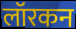
लॉरकन